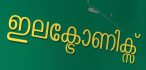
ഇലക്ട്രോണിക്സ്